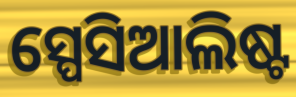
ସ୍ପେସିଆଲିଷ୍ଟ